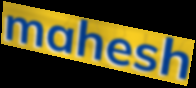
mahesh